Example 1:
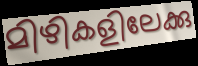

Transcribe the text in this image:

മിഴികളിലേക്കു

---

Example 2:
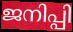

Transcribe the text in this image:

ജനിപ്പി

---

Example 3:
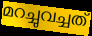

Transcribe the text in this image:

മറച്ചുവച്ചത്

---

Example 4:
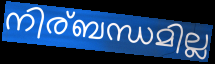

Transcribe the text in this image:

നിര്ബന്ധമില്ല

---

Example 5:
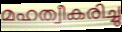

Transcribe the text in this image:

മഹത്വീകരിച്ചു